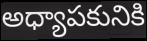
అధ్యాపకునికి